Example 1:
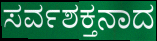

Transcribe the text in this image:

ಸರ್ವಶಕ್ತನಾದ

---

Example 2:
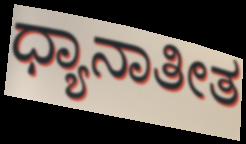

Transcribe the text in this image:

ಧ್ಯಾನಾತೀತ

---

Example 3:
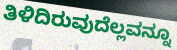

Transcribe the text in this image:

ತಿಳಿದಿರುವುದೆಲ್ಲವನ್ನೂ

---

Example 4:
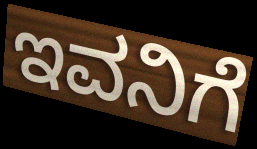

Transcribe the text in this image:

ಇವನಿಗೆ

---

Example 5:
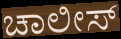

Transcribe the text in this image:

ಚಾಲೀಸ್